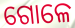
ଗୋଳେ